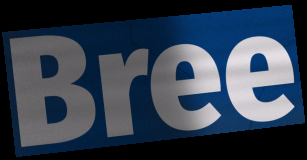
Bree